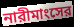
নারীমাংসের